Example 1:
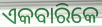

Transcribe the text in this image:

ଏକବାରିକେ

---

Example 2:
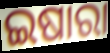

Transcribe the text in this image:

ଇଷାରା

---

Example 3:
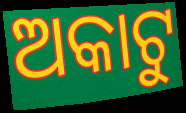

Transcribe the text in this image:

ଅକାଟୁ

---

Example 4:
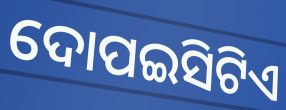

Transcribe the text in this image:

ଦୋପଇସିଟିଏ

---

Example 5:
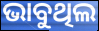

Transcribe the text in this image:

ଭାବୁଥିଲ